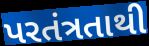
પરતંત્રતાથી